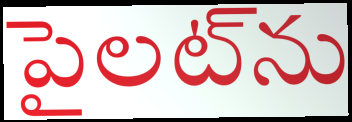
పైలట్‌ను